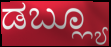
ಡಬ್ಲ್ಯೂ